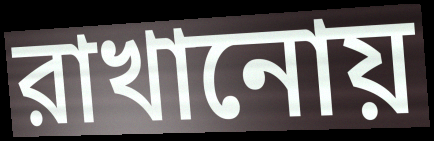
রাখানোয়